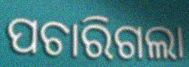
ପଚାରିଗଲା